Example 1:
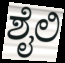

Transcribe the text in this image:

ಶೈಲಿ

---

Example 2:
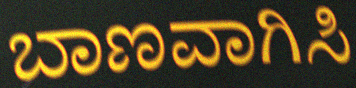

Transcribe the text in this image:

ಬಾಣವಾಗಿಸಿ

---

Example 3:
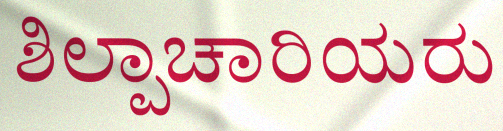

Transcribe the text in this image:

ಶಿಲ್ಪಾಚಾರಿಯರು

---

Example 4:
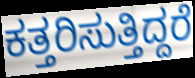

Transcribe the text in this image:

ಕತ್ತರಿಸುತ್ತಿದ್ದರೆ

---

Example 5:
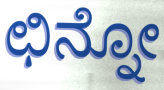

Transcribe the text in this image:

ಛಿನ್ನೋ